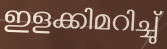
ഇളക്കിമറിച്ചു്